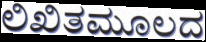
ಲಿಖಿತಮೂಲದ